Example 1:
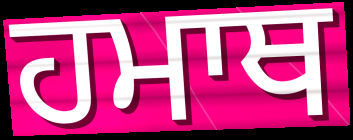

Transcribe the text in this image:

ਹਮਾਥ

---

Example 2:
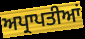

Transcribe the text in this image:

ਅਪ੍ਰਾਪਤੀਆਂ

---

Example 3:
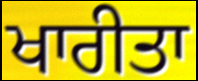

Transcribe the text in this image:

ਖਾਰੀਤਾ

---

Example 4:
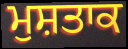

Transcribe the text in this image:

ਮੁਸ਼ਤਾਕ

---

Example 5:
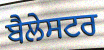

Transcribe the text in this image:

ਬੈਲੇਸਟਰ